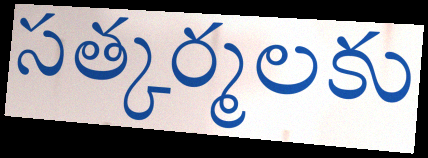
సత్కర్మలకు